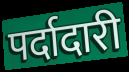
पर्दादारी